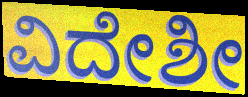
ವಿದೇಶೀ